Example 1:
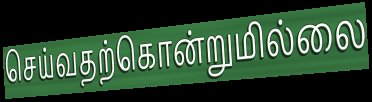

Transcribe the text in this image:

செய்வதற்கொன்றுமில்லை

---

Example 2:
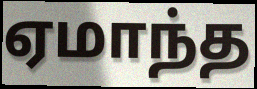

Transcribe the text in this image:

ஏமாந்த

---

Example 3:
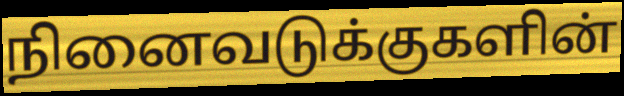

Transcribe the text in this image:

நினைவடுக்குகளின்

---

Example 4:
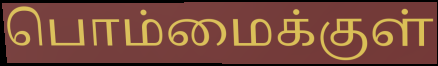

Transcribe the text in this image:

பொம்மைக்குள்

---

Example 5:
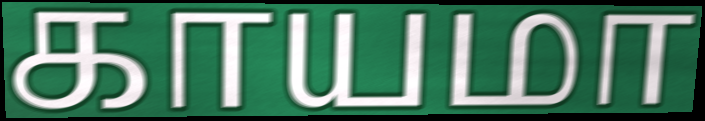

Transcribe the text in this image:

காயமா